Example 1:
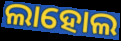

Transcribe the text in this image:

ଲାହୋଲ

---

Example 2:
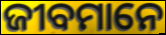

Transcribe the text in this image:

ଜୀବମାନେ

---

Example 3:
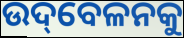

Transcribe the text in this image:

ଉଦ୍‌ବେଳନକୁ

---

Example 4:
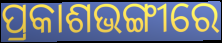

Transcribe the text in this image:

ପ୍ରକାଶଭଙ୍ଗୀରେ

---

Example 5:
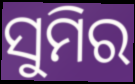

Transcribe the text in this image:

ସୁମିର